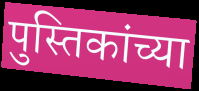
पुस्तिकांच्या